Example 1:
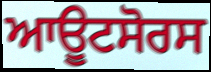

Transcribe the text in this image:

ਆਊਟਸੋਰਸ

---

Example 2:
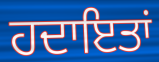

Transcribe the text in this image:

ਹਦਾਇਤਾਂ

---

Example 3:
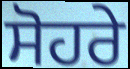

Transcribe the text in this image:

ਸੋਹਰੇ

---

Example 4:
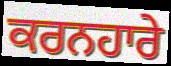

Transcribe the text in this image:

ਕਰਨਹਾਰੇ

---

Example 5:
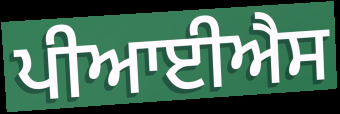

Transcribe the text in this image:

ਪੀਆਈਐਸ